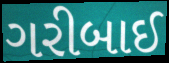
ગરીબાઈ